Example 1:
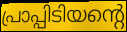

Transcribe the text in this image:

പ്രാപ്പിടിയന്റെ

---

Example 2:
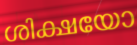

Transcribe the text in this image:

ശിക്ഷയോ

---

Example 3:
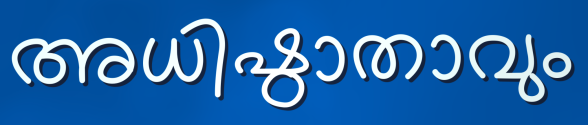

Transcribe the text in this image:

അധിഷ്ഠാതാവും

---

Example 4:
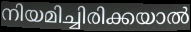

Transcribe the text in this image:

നിയമിച്ചിരിക്കയാൽ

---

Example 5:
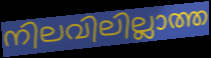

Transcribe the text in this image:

നിലവിലില്ലാത്ത